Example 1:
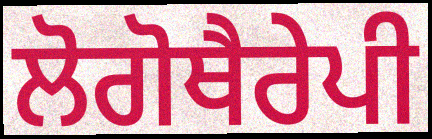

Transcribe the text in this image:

ਲੋਗੋਥੈਰੇਪੀ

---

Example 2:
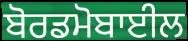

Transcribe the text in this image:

ਬੋਰਡਮੋਬਾਈਲ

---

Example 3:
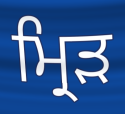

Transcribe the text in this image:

ਮ੍ਰਿੜ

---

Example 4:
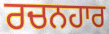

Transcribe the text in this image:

ਰਚਨਹਾਰ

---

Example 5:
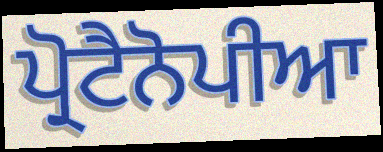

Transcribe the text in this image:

ਪ੍ਰੋਟੈਨੋਪੀਆ